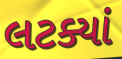
લટક્યાં